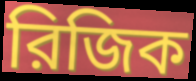
রিজিক